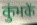
कुंभकें